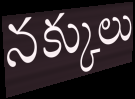
నక్కులు